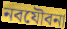
নবযৌবনা